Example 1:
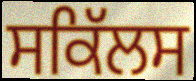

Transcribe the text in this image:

ਸਕਿੱਲਸ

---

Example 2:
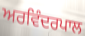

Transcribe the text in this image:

ਅਰਵਿੰਦਰਪਾਲ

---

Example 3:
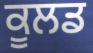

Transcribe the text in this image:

ਕੂਲਡ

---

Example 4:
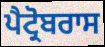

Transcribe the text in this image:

ਪੈਟ੍ਰੋਬਰਾਸ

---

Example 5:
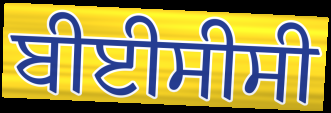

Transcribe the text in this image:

ਬੀਈਸੀਸੀ